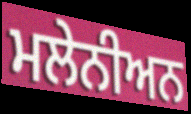
ਮਲੇਨੀਅਨ